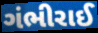
ગંભીરાઈ